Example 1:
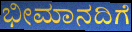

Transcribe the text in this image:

ಭೀಮಾನದಿಗೆ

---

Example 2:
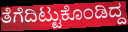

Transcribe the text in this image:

ತೆಗೆದಿಟ್ಟುಕೊಂಡಿದ್ದ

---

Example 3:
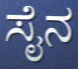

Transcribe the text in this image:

ಸೈನ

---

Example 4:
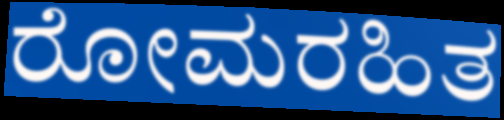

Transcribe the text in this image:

ರೋಮರಹಿತ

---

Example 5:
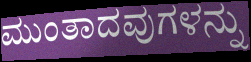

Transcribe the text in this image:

ಮುಂತಾದವುಗಳನ್ನು